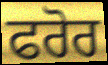
ਫਰੋਰ